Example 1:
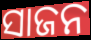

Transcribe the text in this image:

ସାଜନ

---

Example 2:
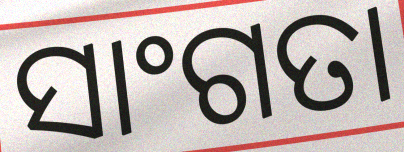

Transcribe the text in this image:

ସାଂଗତା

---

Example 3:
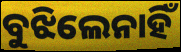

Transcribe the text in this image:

ବୁଝିଲେନାହିଁ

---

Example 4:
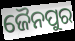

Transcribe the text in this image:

ଜୈନପୁର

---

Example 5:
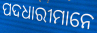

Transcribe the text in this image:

ପଦଧାରୀମାନେ